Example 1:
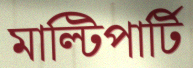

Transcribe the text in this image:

মাল্টিপার্টি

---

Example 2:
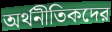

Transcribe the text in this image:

অর্থনীতিকদের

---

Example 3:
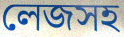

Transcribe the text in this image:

লেজসহ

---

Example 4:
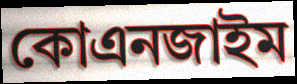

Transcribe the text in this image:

কোএনজাইম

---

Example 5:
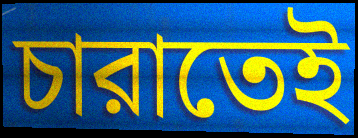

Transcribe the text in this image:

চারাতেই